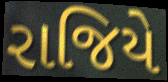
રાજિયે